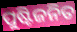
ପୁଷ୍ଟିଜନିତ